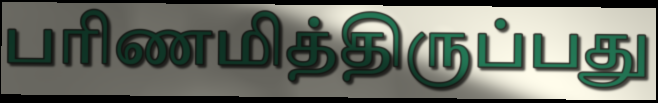
பரிணமித்திருப்பது